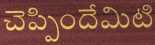
చెప్పిందేమిటి